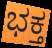
ಭಕ್ತ